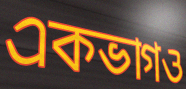
একভাগও